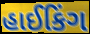
હાઈકિંગ